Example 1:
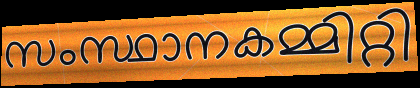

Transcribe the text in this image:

സംസ്ഥാനകമ്മിറ്റി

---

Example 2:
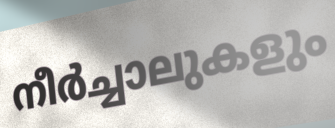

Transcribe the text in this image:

നീർച്ചാലുകളും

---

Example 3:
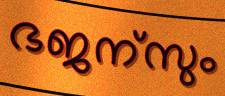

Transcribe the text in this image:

ഭജന്സും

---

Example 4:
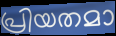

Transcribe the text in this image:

പ്രിയതമാ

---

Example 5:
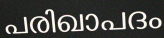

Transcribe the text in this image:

പരിഖാപദം